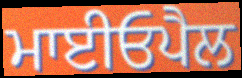
ਮਾਈਓਪੈਲ